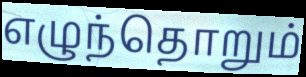
எழுந்தொறும்